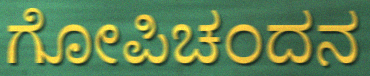
ಗೋಪಿಚಂದನ